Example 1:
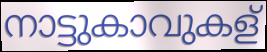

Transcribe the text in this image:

നാട്ടുകാവുകള്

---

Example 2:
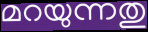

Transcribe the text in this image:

മറയുന്നതു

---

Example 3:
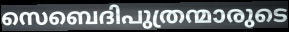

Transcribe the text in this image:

സെബെദിപുത്രന്മാരുടെ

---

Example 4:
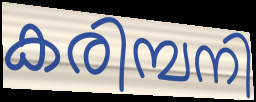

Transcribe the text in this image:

കരിമ്പനി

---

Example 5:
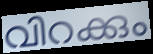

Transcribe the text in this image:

വിറക്കും